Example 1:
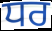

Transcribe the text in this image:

ਧਰ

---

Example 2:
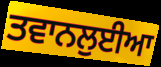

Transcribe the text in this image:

ਤਵਾਨਲੁਈਆ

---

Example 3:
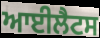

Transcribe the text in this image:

ਆਈਲੈਟਸ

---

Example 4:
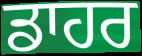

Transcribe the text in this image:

ਡਾਹਰ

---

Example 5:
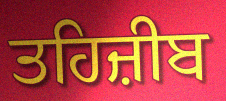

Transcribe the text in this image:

ਤਹਿਜ਼ੀਬ